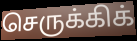
செருக்கிக்